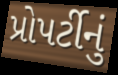
પ્રોપર્ટીનું